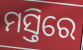
ମସ୍ତିରେ